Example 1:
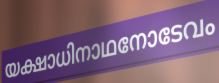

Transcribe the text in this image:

യക്ഷാധിനാഥനോടേവം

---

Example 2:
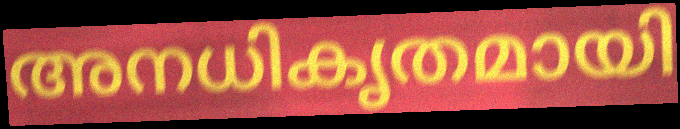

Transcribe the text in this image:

അനധികൃതമായി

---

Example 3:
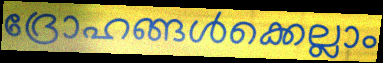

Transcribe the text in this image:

ദ്രോഹങ്ങൾക്കെല്ലാം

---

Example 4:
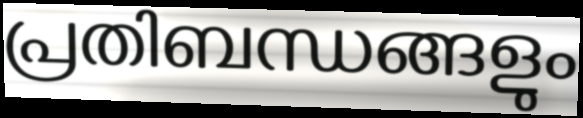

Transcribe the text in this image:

പ്രതിബന്ധങ്ങളും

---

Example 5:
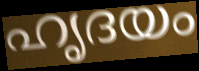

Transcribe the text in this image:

ഹൃദയം